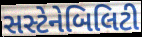
સસ્ટેનેબિલિટી